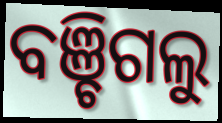
ବଞ୍ଚିଗଲୁ